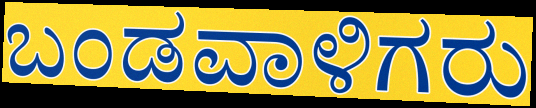
ಬಂಡವಾಳಿಗರು